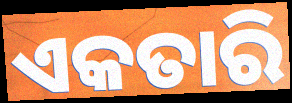
ଏକତାରି